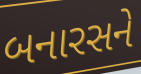
બનારસને